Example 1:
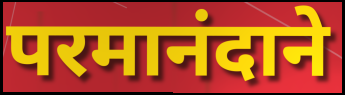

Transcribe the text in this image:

परमानंदाने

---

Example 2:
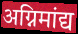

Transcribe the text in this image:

अग्निमांद्य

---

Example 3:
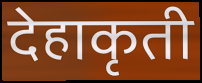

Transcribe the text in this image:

देहाकृती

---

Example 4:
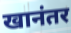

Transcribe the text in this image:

खानंतर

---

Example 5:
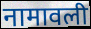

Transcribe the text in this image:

नामावली